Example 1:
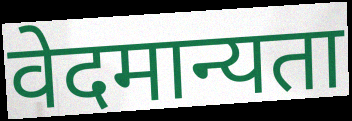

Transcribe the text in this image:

वेदमान्यता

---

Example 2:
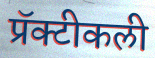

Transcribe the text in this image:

प्रॅक्टीकली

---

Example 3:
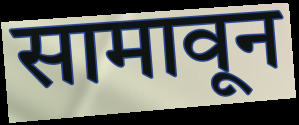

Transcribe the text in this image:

सामावून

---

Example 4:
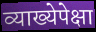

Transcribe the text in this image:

व्याख्येपेक्षा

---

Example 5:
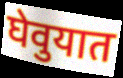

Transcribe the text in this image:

घेवुयात